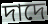
দাদে